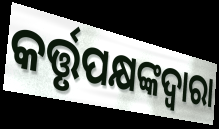
କର୍ତ୍ତୃପକ୍ଷଙ୍କଦ୍ଵାରା